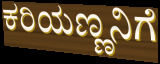
ಕರಿಯಣ್ಣನಿಗೆ